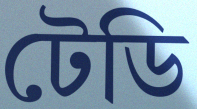
টেডি